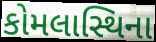
કોમલાસ્થિના